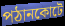
পঠানকোটে